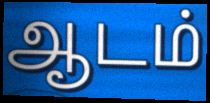
ஆடம்